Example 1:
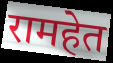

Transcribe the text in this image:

रामहेत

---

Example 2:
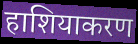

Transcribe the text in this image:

हाशियाकरण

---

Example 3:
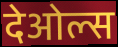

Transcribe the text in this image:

देओल्स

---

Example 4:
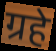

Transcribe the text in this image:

ग्रहे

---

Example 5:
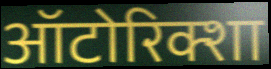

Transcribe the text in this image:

ऑटोरिक्शा